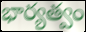
భార్యత్వం